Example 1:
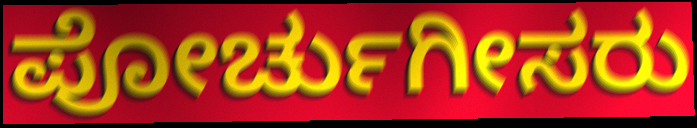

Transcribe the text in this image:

ಪೋರ್ಚುಗೀಸರು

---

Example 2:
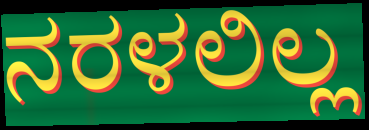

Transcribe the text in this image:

ನರಳಲಿಲ್ಲ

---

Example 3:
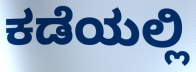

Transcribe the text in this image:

ಕಡೆಯಲ್ಲಿ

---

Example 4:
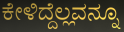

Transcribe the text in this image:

ಕೇಳಿದ್ದೆಲ್ಲವನ್ನೂ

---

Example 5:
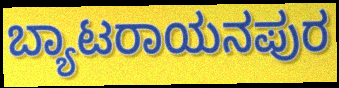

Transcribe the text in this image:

ಬ್ಯಾಟರಾಯನಪುರ